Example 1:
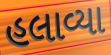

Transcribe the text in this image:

હલાવ્યા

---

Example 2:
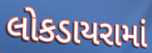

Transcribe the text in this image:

લોકડાયરામાં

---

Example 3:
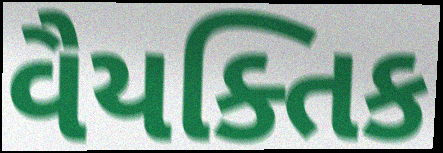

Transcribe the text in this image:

વૈયક્તિક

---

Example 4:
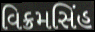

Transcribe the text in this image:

વિક્રમસિંહ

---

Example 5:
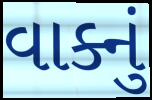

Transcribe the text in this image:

વાક્નું